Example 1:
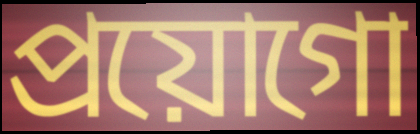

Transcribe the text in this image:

প্ৰয়োগো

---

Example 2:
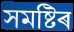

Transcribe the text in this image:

সমষ্টিৰ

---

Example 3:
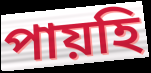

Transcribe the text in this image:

পায়হি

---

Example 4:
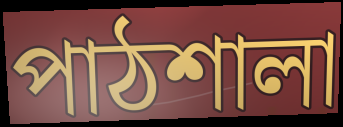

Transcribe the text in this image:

পাঠশালা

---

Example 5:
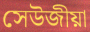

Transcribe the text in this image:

সেউজীয়া